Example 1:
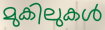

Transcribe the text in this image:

മുകിലുകൾ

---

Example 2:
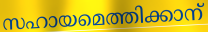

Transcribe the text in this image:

സഹായമെത്തിക്കാന്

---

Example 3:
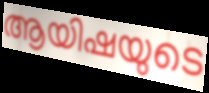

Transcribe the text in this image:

ആയിഷയുടെ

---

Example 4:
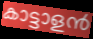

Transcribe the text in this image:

കാട്ടാളൻ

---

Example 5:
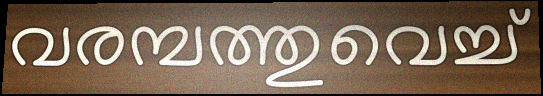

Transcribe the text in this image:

വരമ്പത്തുവെച്ച്